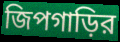
জিপগাড়ির